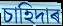
চাহিদাৰ